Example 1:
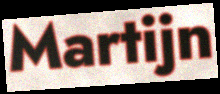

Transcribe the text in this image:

Martijn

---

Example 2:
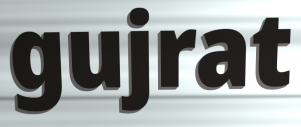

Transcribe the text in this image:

gujrat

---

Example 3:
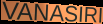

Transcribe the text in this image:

VANASIRI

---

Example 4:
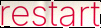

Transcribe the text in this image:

restart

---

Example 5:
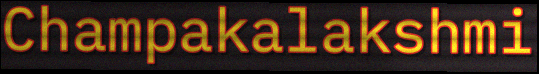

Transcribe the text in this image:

Champakalakshmi